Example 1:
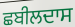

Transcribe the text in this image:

ਛਬੀਲਦਾਸ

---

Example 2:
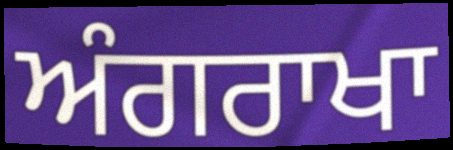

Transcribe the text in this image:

ਅੰਗਰਾਖਾ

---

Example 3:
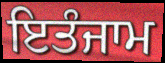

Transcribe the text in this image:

ਇਤੰਜਾਮ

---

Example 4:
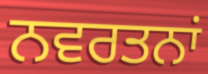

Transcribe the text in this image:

ਨਵਰਤਨਾਂ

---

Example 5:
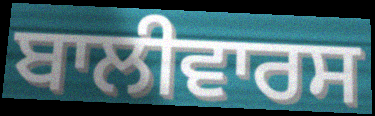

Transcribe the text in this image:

ਬਾਲੀਵਾਰਸ